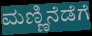
ಮಣ್ಣಿನೆಡೆಗೆ